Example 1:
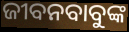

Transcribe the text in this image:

ଜୀବନବାବୁଙ୍କ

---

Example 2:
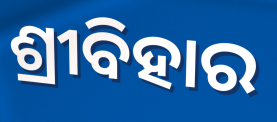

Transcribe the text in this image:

ଶ୍ରୀବିହାର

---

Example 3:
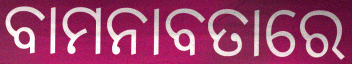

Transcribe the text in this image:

ବାମନାବତାରେ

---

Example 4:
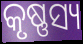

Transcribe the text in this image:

କୃଷ୍ଣସ୍ୟ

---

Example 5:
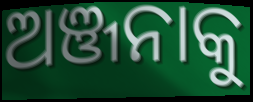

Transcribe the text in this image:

ଅଞ୍ଜନାକୁ